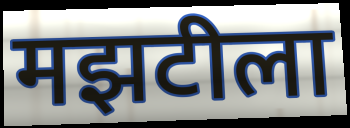
मझटीला